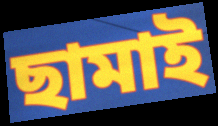
ছামাই